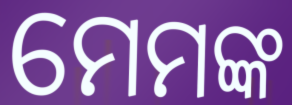
ମେମଙ୍କ